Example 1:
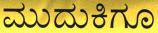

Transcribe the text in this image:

ಮುದುಕಿಗೂ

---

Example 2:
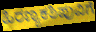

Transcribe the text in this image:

ಹಿರಣ್ಯಕಶಿಪುವಿಗೆ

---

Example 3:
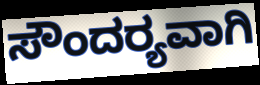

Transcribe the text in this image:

ಸೌಂದರ‍್ಯವಾಗಿ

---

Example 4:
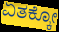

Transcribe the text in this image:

ಏತಕ್ಕೋ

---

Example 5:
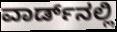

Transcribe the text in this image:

ವಾರ್ಡ್‌ನಲ್ಲಿ